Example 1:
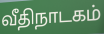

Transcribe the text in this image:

வீதிநாடகம்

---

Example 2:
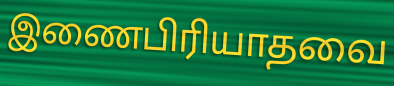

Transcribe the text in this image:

இணைபிரியாதவை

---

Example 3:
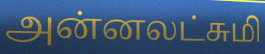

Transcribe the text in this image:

அன்னலட்சுமி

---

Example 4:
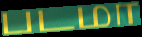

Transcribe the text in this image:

படமா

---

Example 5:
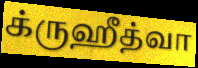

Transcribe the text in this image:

க்ருஹீத்வா